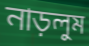
নাড়লুম